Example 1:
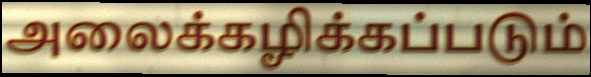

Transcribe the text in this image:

அலைக்கழிக்கப்படும்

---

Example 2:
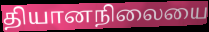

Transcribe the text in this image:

தியானநிலையை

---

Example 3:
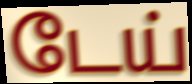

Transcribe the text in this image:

டேய்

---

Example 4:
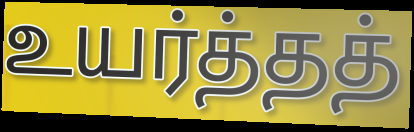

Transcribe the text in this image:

உயர்த்தத்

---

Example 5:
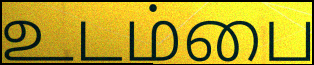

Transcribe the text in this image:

உடம்பை